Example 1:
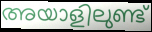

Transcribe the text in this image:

അയാളിലുണ്ട്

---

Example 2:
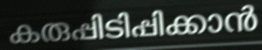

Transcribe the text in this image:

കരുപ്പിടിപ്പിക്കാൻ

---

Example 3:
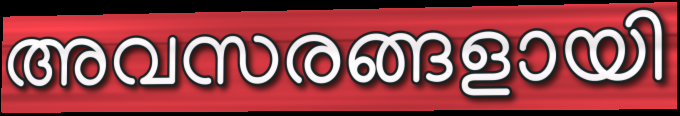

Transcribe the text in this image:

അവസരങ്ങളായി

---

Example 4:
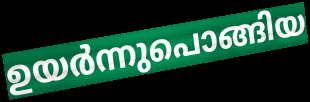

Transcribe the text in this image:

ഉയർന്നുപൊങ്ങിയ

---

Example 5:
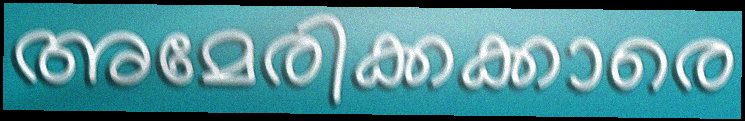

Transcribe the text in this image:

അമേരിക്കക്കാരെ